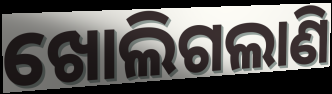
ଖୋଲିଗଲାଣି